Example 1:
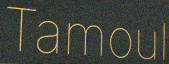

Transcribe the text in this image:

Tamoul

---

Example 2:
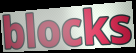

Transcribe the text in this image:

blocks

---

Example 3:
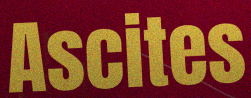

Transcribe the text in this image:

Ascites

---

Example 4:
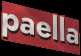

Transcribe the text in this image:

paella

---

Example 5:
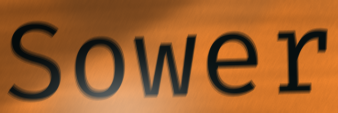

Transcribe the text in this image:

Sower